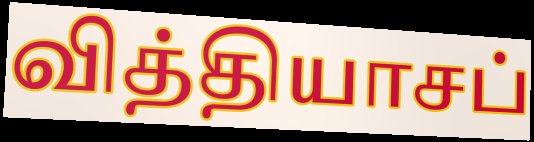
வித்தியாசப்